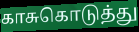
காசுகொடுத்து